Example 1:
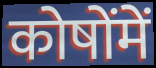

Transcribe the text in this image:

कोषोंमें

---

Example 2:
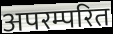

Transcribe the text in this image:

अपरम्परित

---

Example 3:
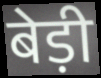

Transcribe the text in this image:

बेड़ी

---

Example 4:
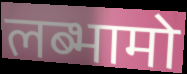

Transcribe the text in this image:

लब्भामो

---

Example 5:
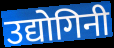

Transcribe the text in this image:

उद्योगिनी